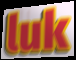
luk